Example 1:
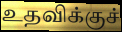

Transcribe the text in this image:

உதவிக்குச்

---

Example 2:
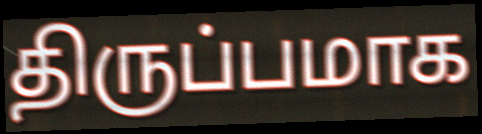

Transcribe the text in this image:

திருப்பமாக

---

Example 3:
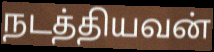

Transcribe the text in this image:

நடத்தியவன்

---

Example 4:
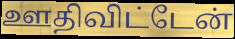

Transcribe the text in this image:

ஊதிவிட்டேன்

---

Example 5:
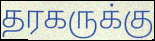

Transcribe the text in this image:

தரகருக்கு